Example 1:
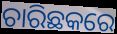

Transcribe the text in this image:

ଚାରିଛକରେ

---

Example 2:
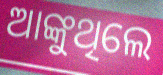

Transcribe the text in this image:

ଆଙ୍କୁଥିଲେ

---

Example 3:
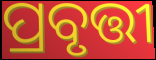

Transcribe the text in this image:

ପ୍ରବୃତ୍ତୀ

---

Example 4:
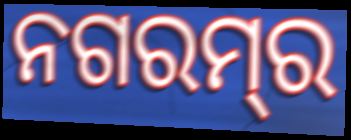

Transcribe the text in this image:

ନଗରମ୍‌ର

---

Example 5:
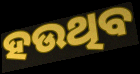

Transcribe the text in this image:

ହଉଥିବ